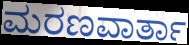
ಮರಣವಾರ್ತಾ